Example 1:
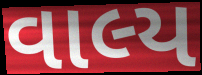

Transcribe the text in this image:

વાલ્ય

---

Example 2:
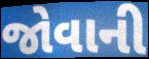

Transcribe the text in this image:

જોવાની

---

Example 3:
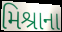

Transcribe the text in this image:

મિશ્રાના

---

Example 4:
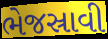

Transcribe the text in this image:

ભેજસ્રાવી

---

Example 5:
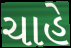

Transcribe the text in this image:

ચાહે